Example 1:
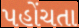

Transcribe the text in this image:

પહોંચતા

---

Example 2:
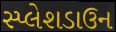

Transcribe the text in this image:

સ્પ્લેશડાઉન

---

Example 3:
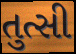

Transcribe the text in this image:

તુત્સી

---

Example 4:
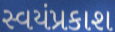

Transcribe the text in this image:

સ્વયંપ્રકાશ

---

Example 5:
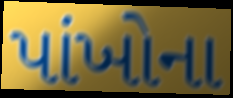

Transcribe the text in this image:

પાંખોના